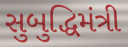
સુબુદ્ધિમંત્રી